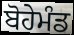
ਬੋਹੇਮੰਡ